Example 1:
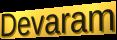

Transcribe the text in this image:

Devaram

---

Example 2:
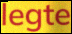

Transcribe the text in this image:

legte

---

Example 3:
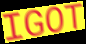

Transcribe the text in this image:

IGOT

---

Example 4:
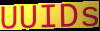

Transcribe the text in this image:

UUIDs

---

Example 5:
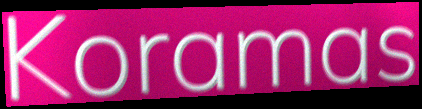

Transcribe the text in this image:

Koramas